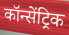
कॉन्सेंट्रिक